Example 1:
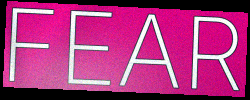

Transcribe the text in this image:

FEAR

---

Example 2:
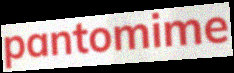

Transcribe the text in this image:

pantomime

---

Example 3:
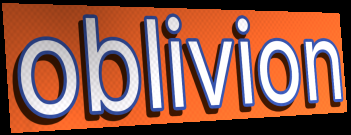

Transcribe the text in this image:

oblivion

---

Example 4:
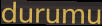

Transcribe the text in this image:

durumu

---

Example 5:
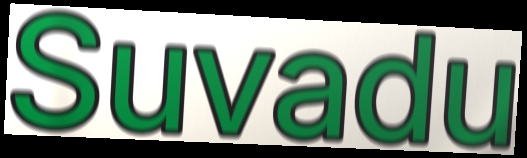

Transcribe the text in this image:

Suvadu